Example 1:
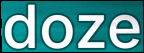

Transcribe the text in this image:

doze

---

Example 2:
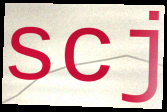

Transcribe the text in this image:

scj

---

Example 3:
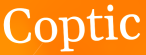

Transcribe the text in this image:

Coptic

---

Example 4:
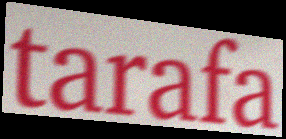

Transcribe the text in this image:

tarafa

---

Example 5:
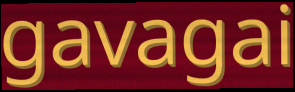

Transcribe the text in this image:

gavagai